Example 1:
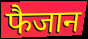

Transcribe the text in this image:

फैजान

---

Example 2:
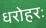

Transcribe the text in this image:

धरोहरः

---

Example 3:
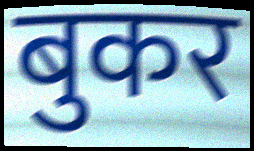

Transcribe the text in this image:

बुकर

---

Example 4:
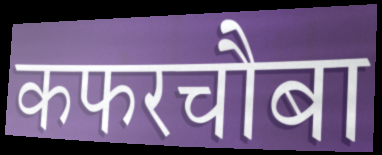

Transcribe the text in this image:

कफरचौबा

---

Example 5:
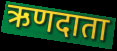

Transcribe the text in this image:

ऋणदाता